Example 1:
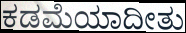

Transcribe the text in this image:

ಕಡಮೆಯಾದೀತು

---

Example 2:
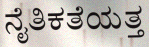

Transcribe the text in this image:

ನೈತಿಕತೆಯತ್ತ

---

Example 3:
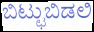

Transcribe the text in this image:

ಬಿಟ್ಟುಬಿಡಲಿ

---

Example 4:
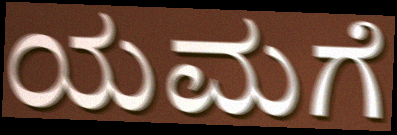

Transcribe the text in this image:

ಯಮಗೆ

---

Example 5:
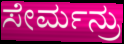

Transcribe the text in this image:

ಸೇರ್ಮನ್ರು